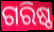
ଗରିଷ୍ଠ